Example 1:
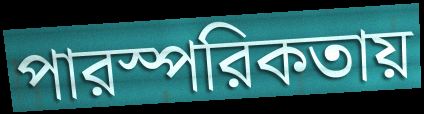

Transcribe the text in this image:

পারস্পরিকতায়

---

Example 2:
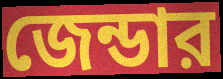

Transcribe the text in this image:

জেন্ডার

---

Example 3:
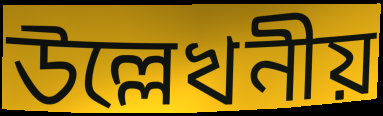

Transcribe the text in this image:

উল্লেখনীয়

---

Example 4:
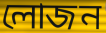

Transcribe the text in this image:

লোজন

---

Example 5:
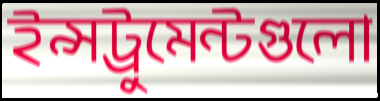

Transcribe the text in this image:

ইন্সট্রুমেন্টগুলো